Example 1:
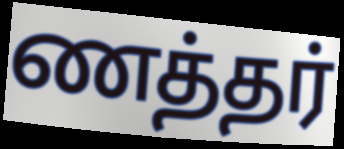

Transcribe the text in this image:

ணத்தர்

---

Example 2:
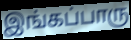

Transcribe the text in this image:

இங்கப்பாரு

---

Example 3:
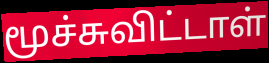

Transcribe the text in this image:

மூச்சுவிட்டாள்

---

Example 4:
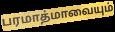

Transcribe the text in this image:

பரமாத்மாவையும்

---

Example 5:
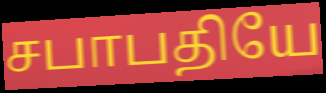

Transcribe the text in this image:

சபாபதியே